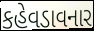
કહેવડાવનાર